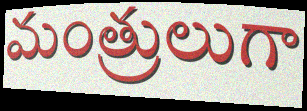
మంత్రులుగా